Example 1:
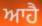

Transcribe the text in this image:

ਆਹੈ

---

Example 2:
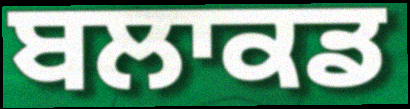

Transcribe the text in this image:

ਬਲਾਕਡ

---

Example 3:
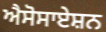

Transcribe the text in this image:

ਐਸੋਸਾਏਸ਼ਨ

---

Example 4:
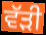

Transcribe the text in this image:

ਵੱੜੀ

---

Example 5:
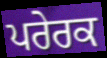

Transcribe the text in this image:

ਪਰੇਰਕ